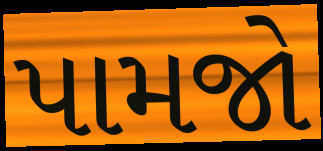
પામજો